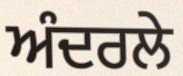
ਅੰਦਰਲੇ